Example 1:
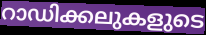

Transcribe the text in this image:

റാഡിക്കലുകളുടെ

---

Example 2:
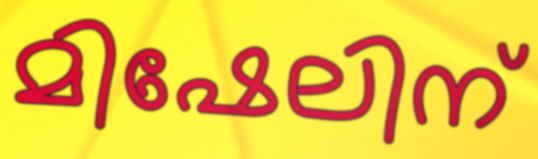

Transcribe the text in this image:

മിഷേലിന്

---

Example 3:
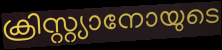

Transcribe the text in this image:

ക്രിസ്റ്റ്യാനോയുടെ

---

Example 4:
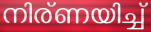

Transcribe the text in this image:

നിര്ണയിച്ച്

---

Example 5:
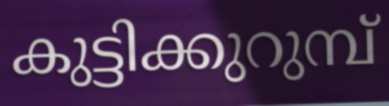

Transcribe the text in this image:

കുട്ടിക്കുറുമ്പ്